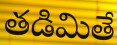
తడిమితే